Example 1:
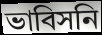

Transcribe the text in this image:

ভাবিসনি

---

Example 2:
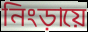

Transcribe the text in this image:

নিংড়ায়ে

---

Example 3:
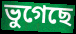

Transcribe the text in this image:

ভুগেছে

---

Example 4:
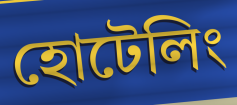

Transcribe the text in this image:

হোটেলিং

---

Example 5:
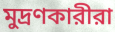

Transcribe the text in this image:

মুদ্রণকারীরা